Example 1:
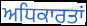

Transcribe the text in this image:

ਅਧਿਕਾਰਤਾਂ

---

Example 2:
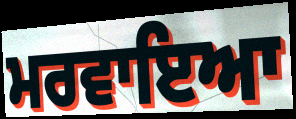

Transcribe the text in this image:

ਮਰਵਾਇਆ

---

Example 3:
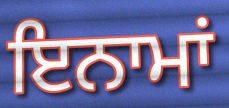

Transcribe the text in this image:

ਇਨਾਮਾਂ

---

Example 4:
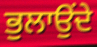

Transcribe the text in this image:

ਭੁਲਾਉਂਦੇ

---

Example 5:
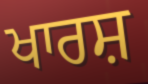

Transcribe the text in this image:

ਖਾਰਸ਼